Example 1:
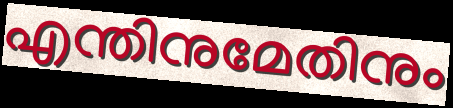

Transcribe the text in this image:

എന്തിനുമേതിനും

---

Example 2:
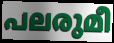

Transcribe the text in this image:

പലരുമീ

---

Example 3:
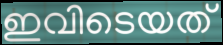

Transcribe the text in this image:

ഇവിടെയത്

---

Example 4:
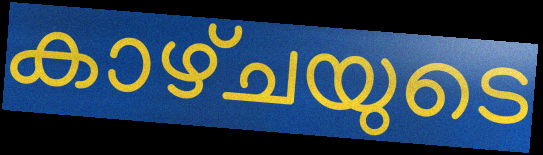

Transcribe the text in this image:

കാഴ്‌ചയുടെ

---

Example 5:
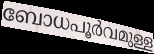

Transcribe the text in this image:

ബോധപൂർവമുള്ള